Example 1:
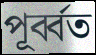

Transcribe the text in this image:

পূৰ্ব্বত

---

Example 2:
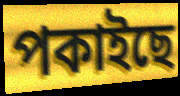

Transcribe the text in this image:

পকাইছে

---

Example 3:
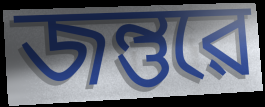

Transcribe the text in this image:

জন্তুৱে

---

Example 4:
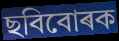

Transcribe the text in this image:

ছবিবোৰক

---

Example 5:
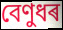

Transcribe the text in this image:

বেণুধৰ